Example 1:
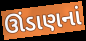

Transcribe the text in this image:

ઊંડાણનાં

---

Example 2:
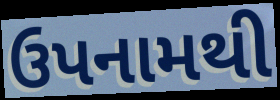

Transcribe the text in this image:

ઉપનામથી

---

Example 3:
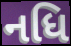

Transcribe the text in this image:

નધિ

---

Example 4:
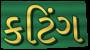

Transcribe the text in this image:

કટિંગ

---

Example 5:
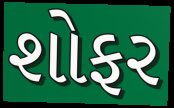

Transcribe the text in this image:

શોફર